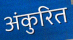
अंकुरित